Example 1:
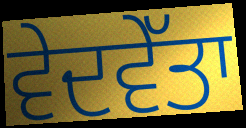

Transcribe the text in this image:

ਵੇਦਵੇੱਤਾ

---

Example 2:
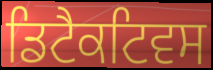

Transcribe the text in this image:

ਡਿਟੈਕਟਿਵਸ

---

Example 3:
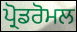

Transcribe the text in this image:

ਪ੍ਰੋਡਰੋਮਲ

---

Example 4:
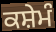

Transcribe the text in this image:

ਕਸ਼ੇਮੰ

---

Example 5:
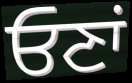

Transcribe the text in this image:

ਓਣਾਂ